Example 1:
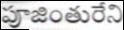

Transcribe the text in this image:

పూజింతురేని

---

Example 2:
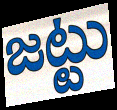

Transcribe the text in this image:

జట్టు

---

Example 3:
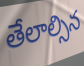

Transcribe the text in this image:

తేలాల్సిన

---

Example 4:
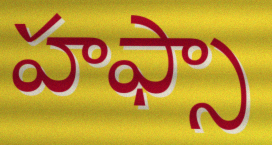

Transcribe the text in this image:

హఫ్సా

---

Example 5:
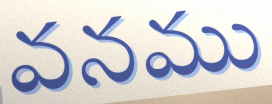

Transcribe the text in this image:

వనము